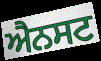
ਐਨਸਟ